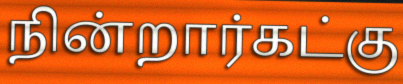
நின்றார்கட்கு